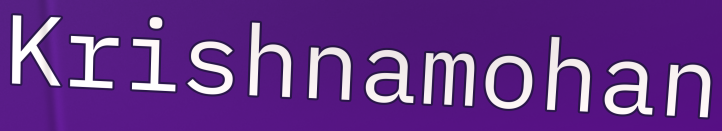
Krishnamohan